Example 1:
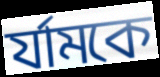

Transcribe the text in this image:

র্যামকে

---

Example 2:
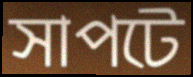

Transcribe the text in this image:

সাপটে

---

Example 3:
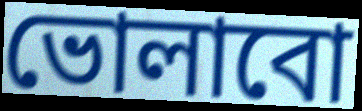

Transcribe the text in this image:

ভোলাবো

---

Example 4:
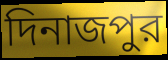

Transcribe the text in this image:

দিনাজপুর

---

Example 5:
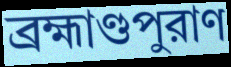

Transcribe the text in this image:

ব্রহ্মাণ্ডপুরাণ